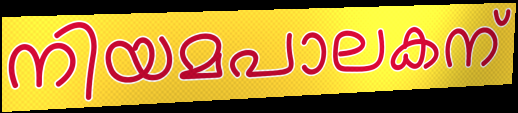
നിയമപാലകന്